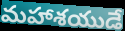
మహాశయుడే